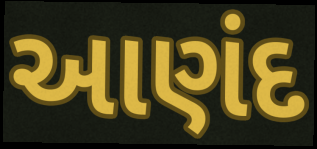
આણંદ